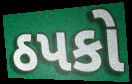
ઠપકો